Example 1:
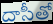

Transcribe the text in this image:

దాసీతో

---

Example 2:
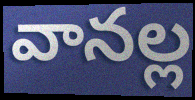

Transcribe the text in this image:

వానల్ల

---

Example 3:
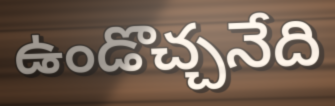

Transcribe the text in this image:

ఉండొచ్చనేది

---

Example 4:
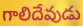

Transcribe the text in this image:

గాలిదేవుడు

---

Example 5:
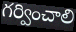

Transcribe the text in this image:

గర్వించాలి